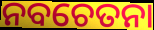
ନବଚେତନା